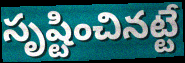
సృష్టించినట్టే